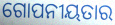
ଗୋପନୀୟତାର